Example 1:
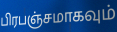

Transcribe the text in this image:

பிரபஞ்சமாகவும்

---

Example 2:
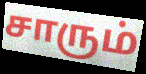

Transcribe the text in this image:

சாரும்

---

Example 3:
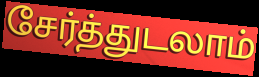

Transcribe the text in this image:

சேர்த்துடலாம்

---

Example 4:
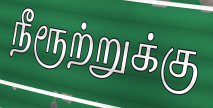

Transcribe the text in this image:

நீரூற்றுக்கு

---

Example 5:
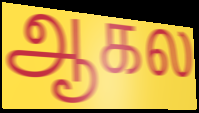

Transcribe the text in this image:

ஆகல